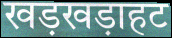
खड़खड़ाहट